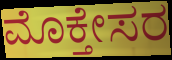
ಮೊಕ್ತೇಸರ